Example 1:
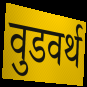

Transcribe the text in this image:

वुडवर्थ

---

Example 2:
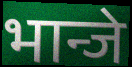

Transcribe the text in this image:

भान्जे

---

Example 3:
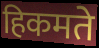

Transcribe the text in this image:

हिकमते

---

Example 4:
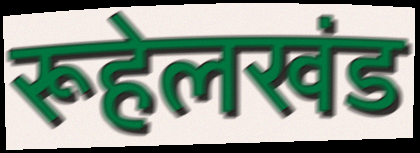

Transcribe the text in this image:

रूहेलखंड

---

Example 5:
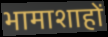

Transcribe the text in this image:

भामाशाहों